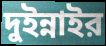
দুইন্নাইর